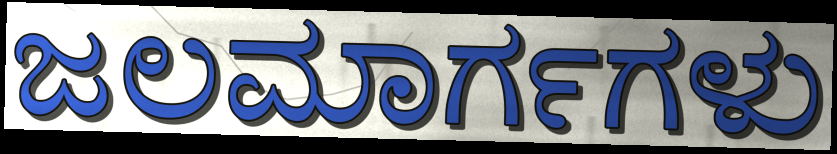
ಜಲಮಾರ್ಗಗಳು